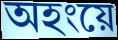
অহংয়ে